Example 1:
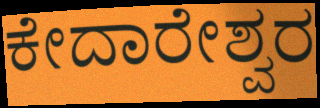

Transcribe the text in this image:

ಕೇದಾರೇಶ್ವರ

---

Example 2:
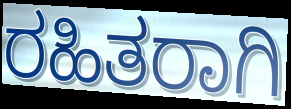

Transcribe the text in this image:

ರಹಿತರಾಗಿ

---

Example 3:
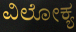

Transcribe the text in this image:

ವಿಲೋಕ್ಯ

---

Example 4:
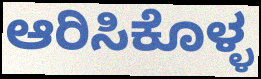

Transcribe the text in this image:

ಆರಿಸಿಕೊಳ್ಳ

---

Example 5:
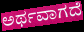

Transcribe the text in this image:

ಅರ್ಥವಾಗದೆ